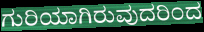
ಗುರಿಯಾಗಿರುವುದರಿಂದ